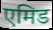
एमिड